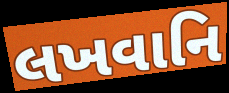
લખવાનિ